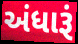
અંધારૂં